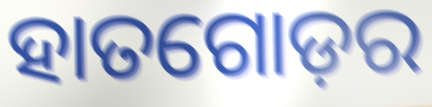
ହାତଗୋଡ଼ର